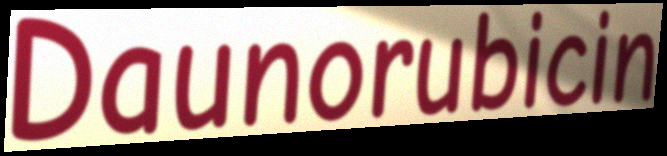
Daunorubicin